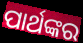
ପାର୍ଥଙ୍କର